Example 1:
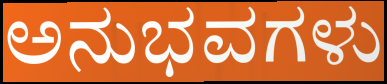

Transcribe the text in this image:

ಅನುಭವಗಳು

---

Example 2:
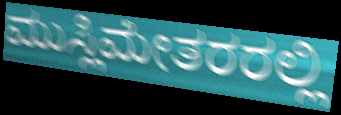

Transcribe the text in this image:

ಮುಸ್ಲಿಮೇತರರಲ್ಲಿ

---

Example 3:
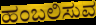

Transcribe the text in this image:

ಹಂಬಲಿಸುವ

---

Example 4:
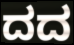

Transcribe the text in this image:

ದದ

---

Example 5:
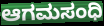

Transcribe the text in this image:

ಆಗಮಸಂಧಿ